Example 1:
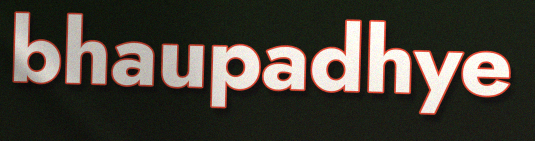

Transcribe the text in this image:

bhaupadhye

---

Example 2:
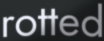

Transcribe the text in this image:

rotted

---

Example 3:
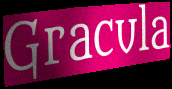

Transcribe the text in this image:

Gracula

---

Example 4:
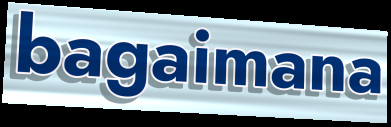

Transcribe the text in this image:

bagaimana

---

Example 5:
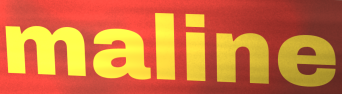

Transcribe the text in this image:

maline